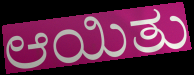
ಆಯಿತು